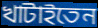
খাটাইতেন